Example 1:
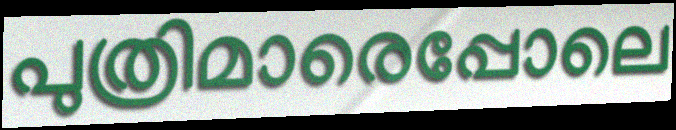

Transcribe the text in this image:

പുത്രിമാരെപ്പോലെ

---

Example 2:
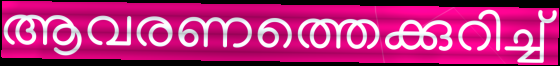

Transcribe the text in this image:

ആവരണത്തെക്കുറിച്ച്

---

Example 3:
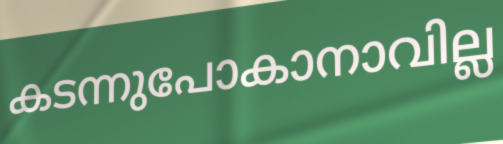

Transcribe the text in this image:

കടന്നുപോകാനാവില്ല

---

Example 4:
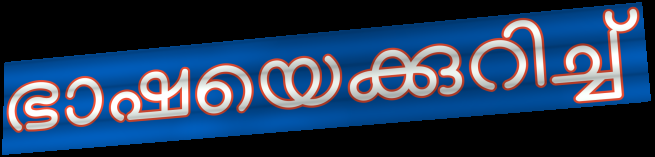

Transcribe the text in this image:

ഭാഷയെക്കുറിച്ച്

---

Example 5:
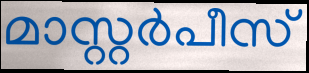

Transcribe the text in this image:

മാസ്റ്റർപീസ്